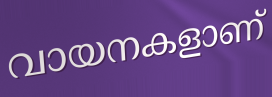
വായനകളാണ്